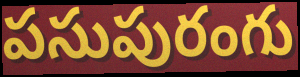
పసుపురంగు